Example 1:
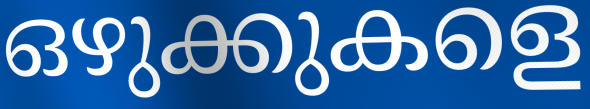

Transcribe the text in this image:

ഒഴുക്കുകളെ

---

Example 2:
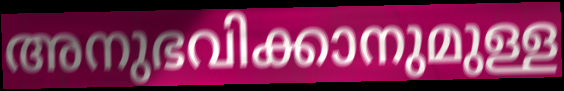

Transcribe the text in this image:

അനുഭവിക്കാനുമുള്ള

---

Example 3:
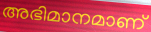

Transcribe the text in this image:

അഭിമാനമാണ്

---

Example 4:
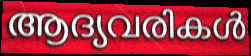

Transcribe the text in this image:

ആദ്യവരികൾ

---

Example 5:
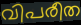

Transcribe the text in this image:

വിപരീത